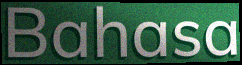
Bahasa